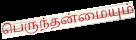
பெருந்தன்மையும்